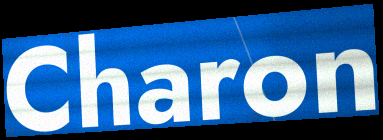
Charon